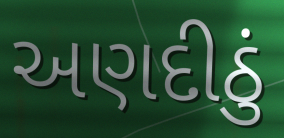
અણદીઠું